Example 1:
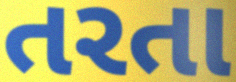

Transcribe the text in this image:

તરતા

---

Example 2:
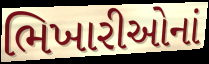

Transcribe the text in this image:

ભિખારીઓનાં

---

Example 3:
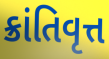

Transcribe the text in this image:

ક્રાંતિવૃત્ત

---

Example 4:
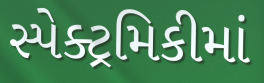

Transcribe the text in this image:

સ્પેક્ટ્રમિકીમાં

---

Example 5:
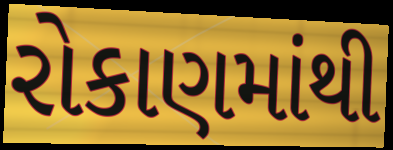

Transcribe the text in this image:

રોકાણમાંથી